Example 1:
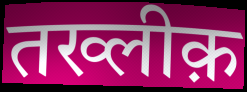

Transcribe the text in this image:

तख्लीक़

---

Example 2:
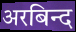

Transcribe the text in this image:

अरबिन्द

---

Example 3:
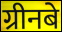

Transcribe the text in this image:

ग्रीनबे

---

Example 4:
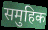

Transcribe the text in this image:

समुहिक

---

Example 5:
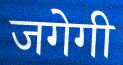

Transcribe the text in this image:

जगेगी